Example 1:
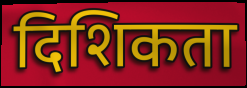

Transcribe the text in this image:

दिशिकता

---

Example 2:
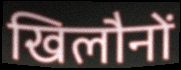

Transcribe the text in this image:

खिलौनों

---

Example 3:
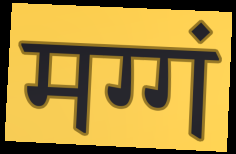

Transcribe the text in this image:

मग्गं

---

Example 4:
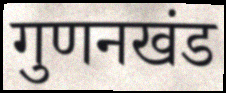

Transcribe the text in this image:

गुणनखंड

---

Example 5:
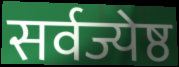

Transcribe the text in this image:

सर्वज्येष्ठ